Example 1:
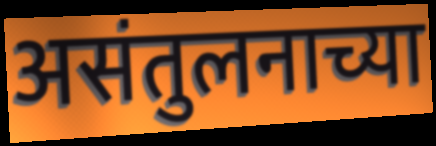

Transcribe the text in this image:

असंतुलनाच्या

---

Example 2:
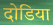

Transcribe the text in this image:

दोडिया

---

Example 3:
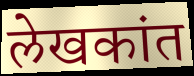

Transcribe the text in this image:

लेखकांत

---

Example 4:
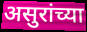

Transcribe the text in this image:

असुरांच्या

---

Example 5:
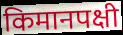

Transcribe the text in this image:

किमानपक्षी